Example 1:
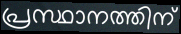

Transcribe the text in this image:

പ്രസ്ഥാനത്തിന്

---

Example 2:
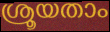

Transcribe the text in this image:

ശ്രൂയതാം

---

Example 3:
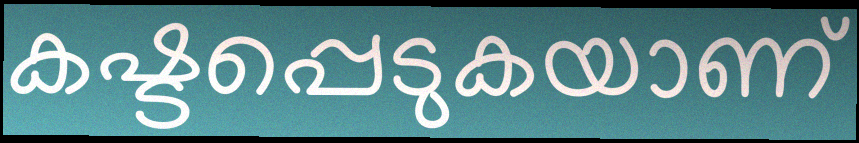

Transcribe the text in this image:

കഷ്ടപ്പെടുകയാണ്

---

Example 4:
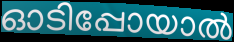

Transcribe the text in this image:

ഓടിപ്പോയാൽ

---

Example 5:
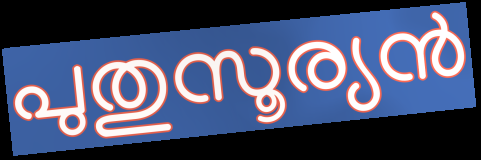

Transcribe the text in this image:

പുതുസൂര്യൻ